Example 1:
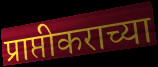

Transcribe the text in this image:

प्राप्तीकराच्या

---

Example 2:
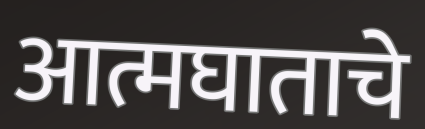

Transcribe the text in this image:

आत्मघाताचे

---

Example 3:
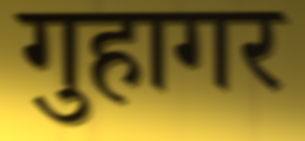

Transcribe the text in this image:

गुहागर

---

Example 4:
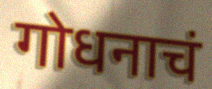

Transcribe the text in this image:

गोधनाचं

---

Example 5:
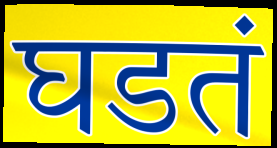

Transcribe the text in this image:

घडतं